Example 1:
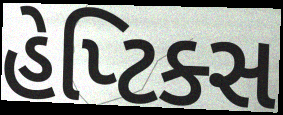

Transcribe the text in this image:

હેપ્ટિક્સ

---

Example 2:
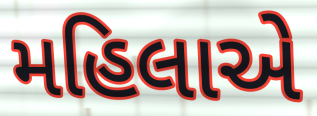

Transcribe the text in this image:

મહિલાએ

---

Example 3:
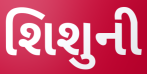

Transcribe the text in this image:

શિશુની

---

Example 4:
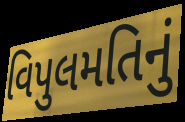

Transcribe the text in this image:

વિપુલમતિનું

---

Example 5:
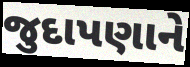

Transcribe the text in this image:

જુદાપણાને